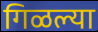
गिळल्या